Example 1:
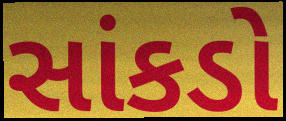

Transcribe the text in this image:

સાંકડો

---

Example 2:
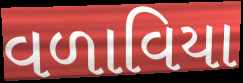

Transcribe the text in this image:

વળાવિયા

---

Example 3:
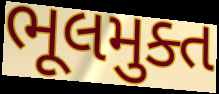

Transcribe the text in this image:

ભૂલમુક્ત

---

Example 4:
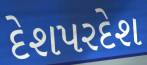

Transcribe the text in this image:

દેશપરદેશ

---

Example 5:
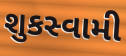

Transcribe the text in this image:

શુકસ્વામી